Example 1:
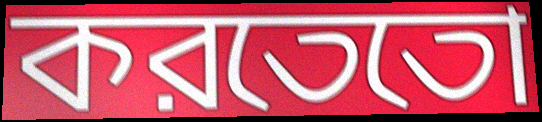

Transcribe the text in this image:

করতেতো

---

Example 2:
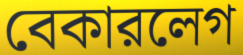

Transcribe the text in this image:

বেকারলেগ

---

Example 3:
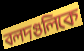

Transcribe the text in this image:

বলদগুলিকে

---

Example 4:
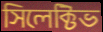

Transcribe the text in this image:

সিলেক্টিভ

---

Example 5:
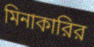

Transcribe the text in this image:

মিনাকারির